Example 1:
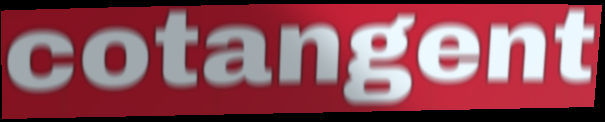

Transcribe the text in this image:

cotangent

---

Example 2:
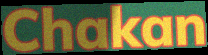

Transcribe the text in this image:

Chakan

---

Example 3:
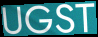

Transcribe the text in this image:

UGST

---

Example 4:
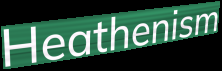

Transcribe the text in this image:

Heathenism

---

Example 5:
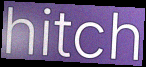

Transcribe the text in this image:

hitch